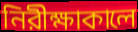
নিরীক্ষাকালে